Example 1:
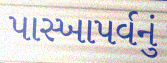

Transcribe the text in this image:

પાસ્ખાપર્વનું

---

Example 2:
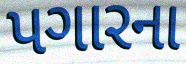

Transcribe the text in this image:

પગારના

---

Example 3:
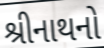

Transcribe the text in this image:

શ્રીનાથનો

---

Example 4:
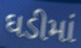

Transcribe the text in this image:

ઘડીમાં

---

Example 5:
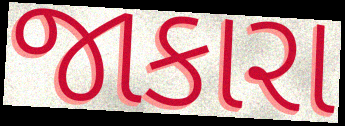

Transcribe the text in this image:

જાકારા